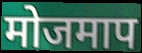
मोजमाप